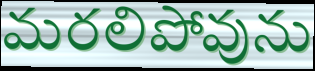
మరలిపోవును